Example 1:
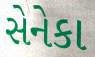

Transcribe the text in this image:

સેનેકા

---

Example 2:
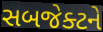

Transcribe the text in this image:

સબજેક્ટને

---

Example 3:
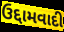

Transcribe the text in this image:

ઉદ્દામવાદી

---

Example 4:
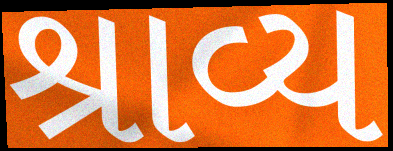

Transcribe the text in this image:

શ્રાવ્ય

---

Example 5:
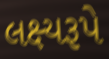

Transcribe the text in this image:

લક્ષ્યરૂપે